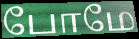
போமே